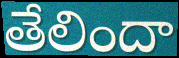
తేలిందా